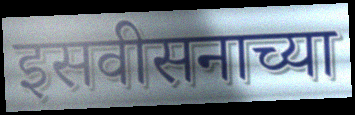
इसवीसनाच्या